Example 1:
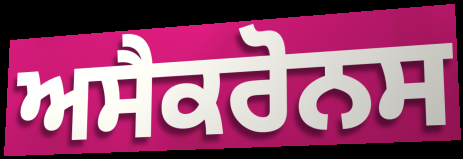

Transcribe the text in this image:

ਅਸੈਕਰੋਨਸ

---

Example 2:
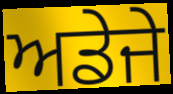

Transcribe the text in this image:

ਅਡੇਜੇ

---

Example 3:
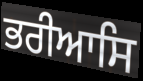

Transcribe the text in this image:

ਭਰੀਆਸਿ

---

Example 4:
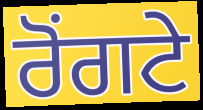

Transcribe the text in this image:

ਰੋੰਗਟੇ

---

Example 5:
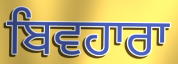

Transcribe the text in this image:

ਬਿਵਹਾਰਾ